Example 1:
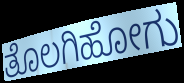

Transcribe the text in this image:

ತೊಲಗಿಹೋಗು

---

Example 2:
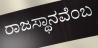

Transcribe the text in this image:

ರಾಜಸ್ಥಾನವೆಂಬ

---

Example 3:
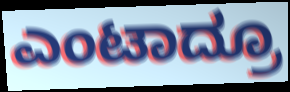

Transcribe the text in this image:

ಎಂಟಾದ್ರೂ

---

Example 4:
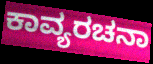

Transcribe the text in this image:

ಕಾವ್ಯರಚನಾ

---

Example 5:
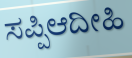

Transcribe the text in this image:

ಸಪ್ಪಿಆದೀಹಿ